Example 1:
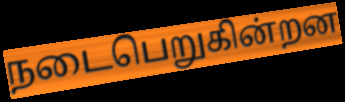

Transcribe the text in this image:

நடைபெறுகின்றன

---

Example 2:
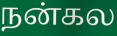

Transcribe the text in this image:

நன்கல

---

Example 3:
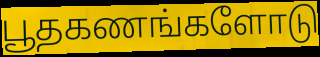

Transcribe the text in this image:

பூதகணங்களோடு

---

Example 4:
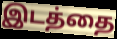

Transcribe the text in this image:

இடத்தை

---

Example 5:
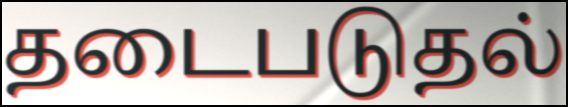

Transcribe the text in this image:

தடைபடுதல்